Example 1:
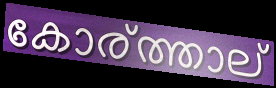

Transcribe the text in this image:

കോര്ത്താല്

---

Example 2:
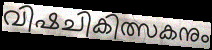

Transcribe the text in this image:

വിഷചികിത്സകനും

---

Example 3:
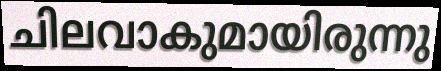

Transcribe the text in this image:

ചിലവാകുമായിരുന്നു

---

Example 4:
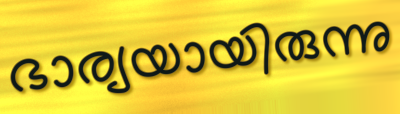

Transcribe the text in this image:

ഭാര്യയായിരുന്നു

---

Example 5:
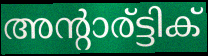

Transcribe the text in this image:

അന്റാര്ട്ടിക്